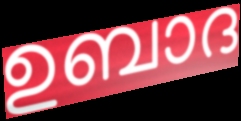
ഉബാദ